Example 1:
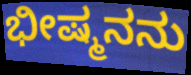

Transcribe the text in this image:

ಭೀಷ್ಮನನು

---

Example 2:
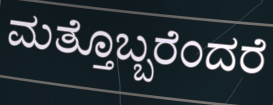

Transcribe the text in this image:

ಮತ್ತೊಬ್ಬರೆಂದರೆ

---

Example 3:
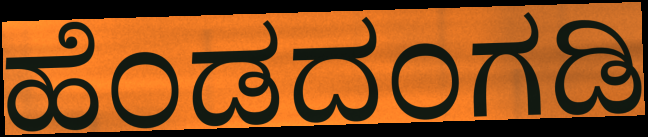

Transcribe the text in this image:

ಹೆಂಡದಂಗಡಿ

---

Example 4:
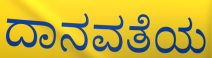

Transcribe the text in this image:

ದಾನವತೆಯ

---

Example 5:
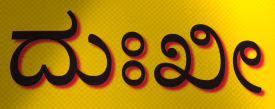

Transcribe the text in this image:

ದುಃಖೀ